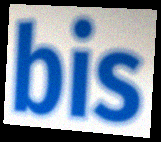
bis